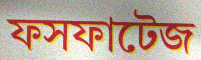
ফসফাটেজ